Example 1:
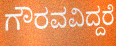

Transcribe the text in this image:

ಗೌರವವಿದ್ದರೆ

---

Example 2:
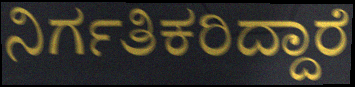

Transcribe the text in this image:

ನಿರ್ಗತಿಕರಿದ್ದಾರೆ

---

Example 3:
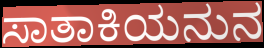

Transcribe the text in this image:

ಸಾತಾಕಿಯನುನ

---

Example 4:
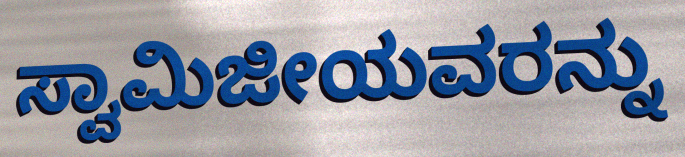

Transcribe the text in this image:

ಸ್ವಾಮಿಜೀಯವರನ್ನು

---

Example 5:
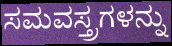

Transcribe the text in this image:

ಸಮವಸ್ತ್ರಗಳನ್ನು